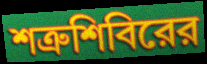
শত্রুশিবিরের